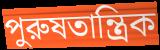
পুরুষতান্ত্রিক